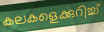
കലകളെക്കുറിച്ച്